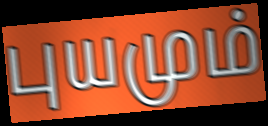
புயமும்